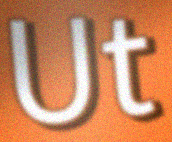
Ut